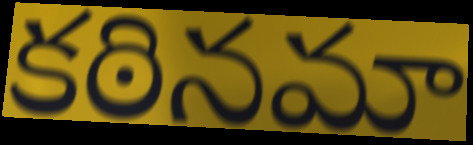
కఠినమా